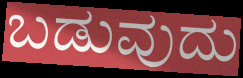
ಬಡುವುದು